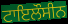
ਟਾਇਲੌਸੀਨ